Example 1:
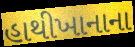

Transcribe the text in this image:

હાથીખાનાના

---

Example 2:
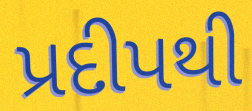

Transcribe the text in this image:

પ્રદીપથી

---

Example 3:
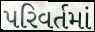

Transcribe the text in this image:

પરિવર્તમાં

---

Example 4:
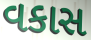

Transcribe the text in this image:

વકાસ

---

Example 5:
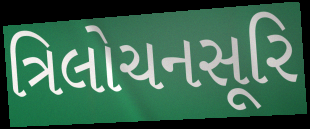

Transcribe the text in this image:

ત્રિલોચનસૂરિ